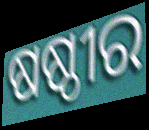
ଷଷ୍ଠୀର